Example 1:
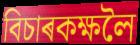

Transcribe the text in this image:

বিচাৰকক্ষলৈ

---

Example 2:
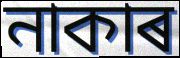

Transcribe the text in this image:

নাকাৰ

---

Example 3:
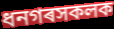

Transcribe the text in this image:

ধনগৰসকলক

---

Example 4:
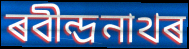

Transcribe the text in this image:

ৰবীন্দ্ৰনাথৰ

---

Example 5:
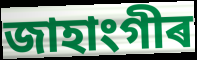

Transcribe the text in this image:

জাহাংগীৰ